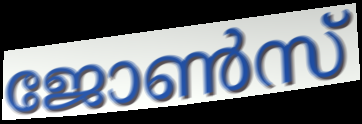
ജോൺസ്